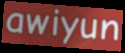
awiyun